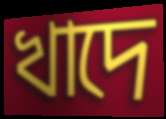
খাদে